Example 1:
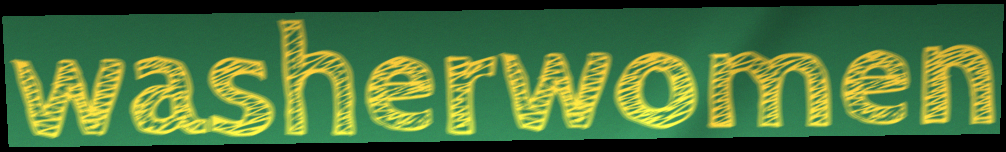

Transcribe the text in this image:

washerwomen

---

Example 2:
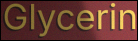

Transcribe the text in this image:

Glycerin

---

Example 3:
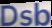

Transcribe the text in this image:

Dsb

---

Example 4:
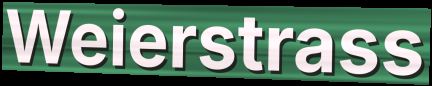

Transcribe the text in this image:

Weierstrass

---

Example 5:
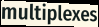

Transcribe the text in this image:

multiplexes